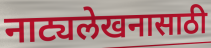
नाट्यलेखनासाठी